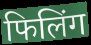
फिलिंग